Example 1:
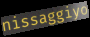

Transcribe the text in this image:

nissaggiyo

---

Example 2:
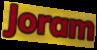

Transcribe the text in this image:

Joram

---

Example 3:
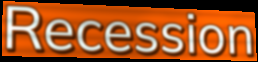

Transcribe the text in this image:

Recession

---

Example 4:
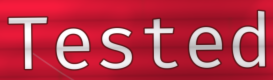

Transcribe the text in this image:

Tested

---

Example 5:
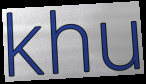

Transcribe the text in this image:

khu